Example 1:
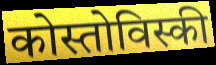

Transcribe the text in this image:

कोस्तोविस्की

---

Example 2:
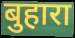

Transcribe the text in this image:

बुहारा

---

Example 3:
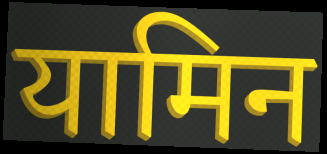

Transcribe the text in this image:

यामिन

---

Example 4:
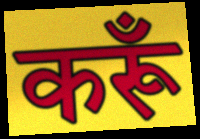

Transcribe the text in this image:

करूँ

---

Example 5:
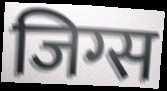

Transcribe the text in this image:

जिग्स